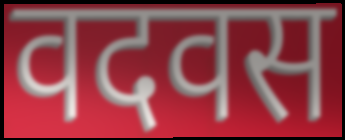
वदवस